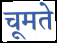
चूमते